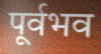
पूर्वभव